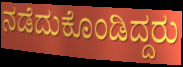
ನಡೆದುಕೊಂಡಿದ್ದರು